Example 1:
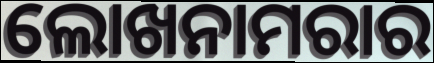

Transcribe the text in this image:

ଲୋଖନାମରାର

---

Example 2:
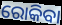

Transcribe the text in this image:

ରୋକିବା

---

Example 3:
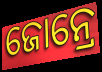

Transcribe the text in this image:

ଜୋନ୍ରେ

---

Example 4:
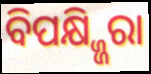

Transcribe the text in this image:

ବିପକ୍ଷ୍ଜ୍ଜିରା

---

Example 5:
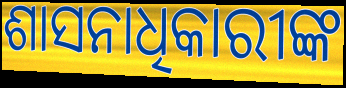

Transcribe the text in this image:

ଶାସନାଧିକାରୀଙ୍କ